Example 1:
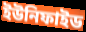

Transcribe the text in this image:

ইউনিফাইড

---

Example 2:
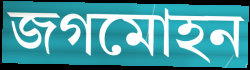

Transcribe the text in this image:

জগমোহন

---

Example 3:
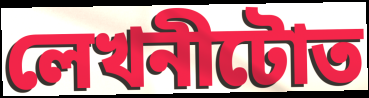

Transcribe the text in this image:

লেখনীটোত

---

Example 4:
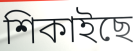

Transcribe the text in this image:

শিকাইছে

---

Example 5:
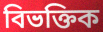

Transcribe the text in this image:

বিভক্তিক